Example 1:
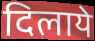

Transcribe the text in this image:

दिलाये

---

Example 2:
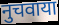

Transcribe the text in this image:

नुचवाया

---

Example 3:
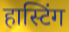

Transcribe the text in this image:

हास्टिंग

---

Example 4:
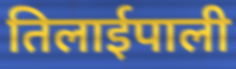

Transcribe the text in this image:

तिलाईपाली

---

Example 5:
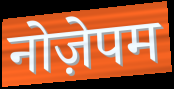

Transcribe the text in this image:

नोज़ेपम